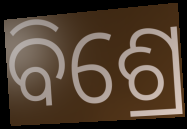
ବିଶ୍ରେ